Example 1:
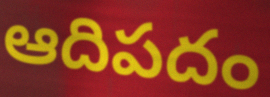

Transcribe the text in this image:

ఆదిపదం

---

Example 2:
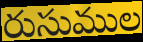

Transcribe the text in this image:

రుసుముల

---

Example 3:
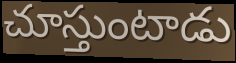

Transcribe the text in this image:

చూస్తుంటాడు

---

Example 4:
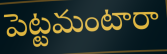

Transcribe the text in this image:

పెట్టమంటారా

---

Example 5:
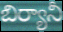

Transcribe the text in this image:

బిర్యానీ